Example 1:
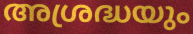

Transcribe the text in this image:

അശ്രദ്ധയും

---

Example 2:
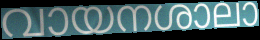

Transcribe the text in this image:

വായനശാലാ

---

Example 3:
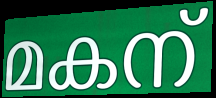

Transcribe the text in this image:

മകന്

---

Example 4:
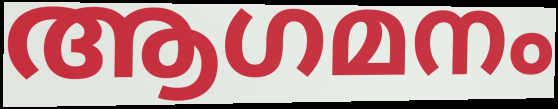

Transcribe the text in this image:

ആഗമനം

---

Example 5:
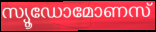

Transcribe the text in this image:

സ്യൂഡോമോണസ്